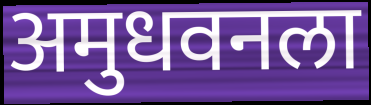
अमुधवनला